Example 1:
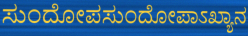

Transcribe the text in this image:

ಸುಂದೋಪಸುಂದೋಪಾಽಖ್ಯಾನ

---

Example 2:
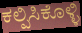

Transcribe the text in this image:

ಕಲ್ಪಿಸಿಕೊಳ್ಳಿ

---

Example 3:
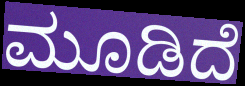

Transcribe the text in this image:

ಮೂಡಿದೆ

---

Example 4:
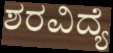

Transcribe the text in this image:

ಶರವಿದ್ಯೆ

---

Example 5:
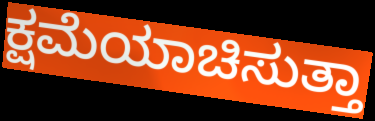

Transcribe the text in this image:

ಕ್ಷಮೆಯಾಚಿಸುತ್ತಾ